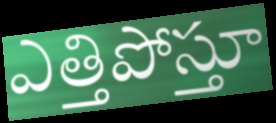
ఎత్తిపోస్తూ